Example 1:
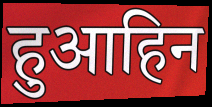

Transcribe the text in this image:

हुआहिन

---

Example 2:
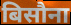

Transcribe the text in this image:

बिसौना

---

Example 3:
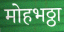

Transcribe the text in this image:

मोहभठ्ठा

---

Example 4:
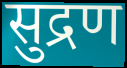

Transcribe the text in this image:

सुद्रण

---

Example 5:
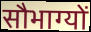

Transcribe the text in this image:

सौभाग्यों